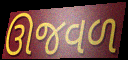
ઊજવળ